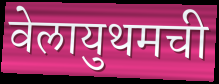
वेलायुथमची